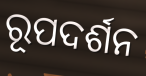
ରୂପଦର୍ଶନ